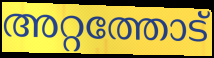
അറ്റത്തോട്